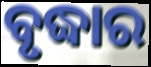
ବୃଦ୍ଧାର